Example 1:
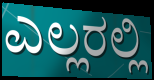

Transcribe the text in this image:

ಎಲ್ಲರಲ್ಲಿ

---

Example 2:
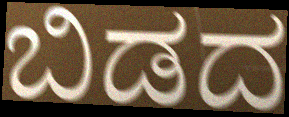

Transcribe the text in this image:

ಬಿಡದ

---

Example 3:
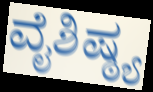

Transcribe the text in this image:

ವೈಶಿಷ್ಠ್ಯ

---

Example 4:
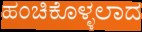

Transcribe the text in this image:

ಹಂಚಿಕೊಳ್ಳಲಾದ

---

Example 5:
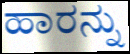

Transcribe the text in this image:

ಹಾರನ್ನು